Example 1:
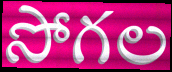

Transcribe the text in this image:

సోగల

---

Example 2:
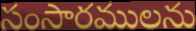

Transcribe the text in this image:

సంసారములను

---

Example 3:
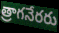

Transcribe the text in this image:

త్రాగనేరరు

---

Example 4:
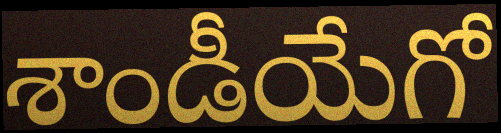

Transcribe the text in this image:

శాండీయేగో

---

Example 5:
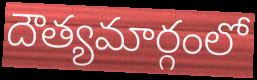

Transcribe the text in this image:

దౌత్యమార్గంలో